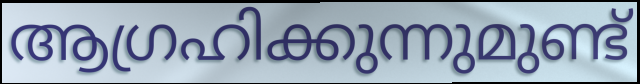
ആഗ്രഹിക്കുന്നുമുണ്ട്